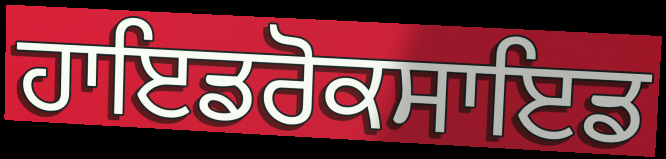
ਹਾਇਡਰੋਕਸਾਇਡ